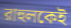
রাহুলকেই